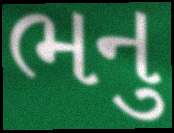
ભનુ